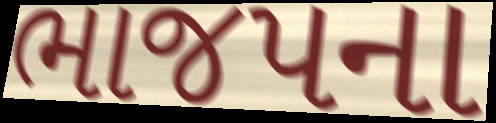
ભાજપના